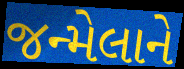
જન્મેલાને